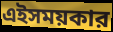
এইসময়কার